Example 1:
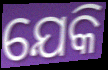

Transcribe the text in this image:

ଯେକି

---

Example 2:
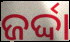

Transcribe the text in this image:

ଜର୍ଦ୍ଦା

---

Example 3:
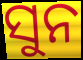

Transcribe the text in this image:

ସୁନ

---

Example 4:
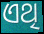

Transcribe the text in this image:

ଏଥି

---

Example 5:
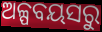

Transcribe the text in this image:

ଅଳ୍ପବୟସରୁ